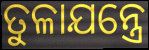
ତୁଳାଯନ୍ତ୍ରେ